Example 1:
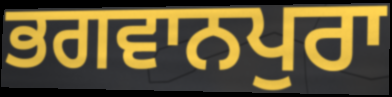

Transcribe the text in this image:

ਭਗਵਾਨਪੁਰਾ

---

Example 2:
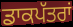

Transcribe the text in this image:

ਡਾਕਪੱਤਰਾਂ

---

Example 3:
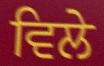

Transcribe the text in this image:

ਵਿਲੇ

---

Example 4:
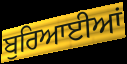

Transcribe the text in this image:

ਬੁਰਿਆਈਆਂ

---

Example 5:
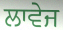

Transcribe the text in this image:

ਲਾਵੇਜ